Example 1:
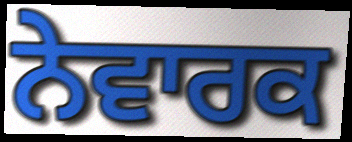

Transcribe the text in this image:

ਨੇਵਾਰਕ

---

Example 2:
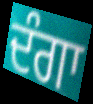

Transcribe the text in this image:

ਦੰਗਾ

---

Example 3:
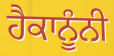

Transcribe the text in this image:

ਹੈਕਾਨੂੰਨੀ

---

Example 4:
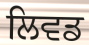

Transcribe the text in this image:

ਲਿਵਡ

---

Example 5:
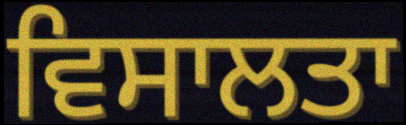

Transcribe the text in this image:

ਵਿਸਾਲਤਾ